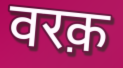
वरक़